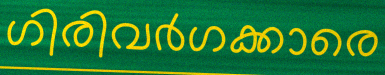
ഗിരിവർഗക്കാരെ